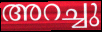
അറച്ചു